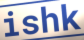
ishk